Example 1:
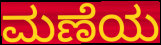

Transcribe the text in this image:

ಮಣೆಯ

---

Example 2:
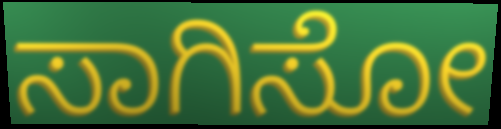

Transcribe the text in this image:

ಸಾಗಿಸೋ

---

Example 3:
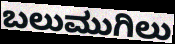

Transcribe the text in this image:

ಬಲುಮುಗಿಲು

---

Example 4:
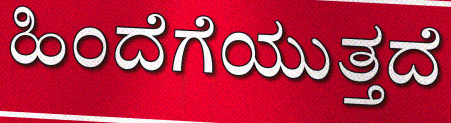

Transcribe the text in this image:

ಹಿಂದೆಗೆಯುತ್ತದೆ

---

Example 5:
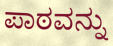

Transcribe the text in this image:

ಪಾಠವನ್ನು